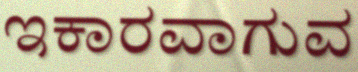
ಇಕಾರವಾಗುವ